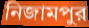
নিজামপুর